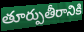
తూర్పుతీరానికి